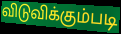
விடுவிக்கும்படி